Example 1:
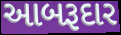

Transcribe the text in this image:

આબરૂદાર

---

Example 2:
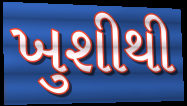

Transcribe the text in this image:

ખુશીથી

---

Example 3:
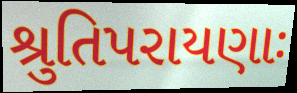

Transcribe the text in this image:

શ્રુતિપરાયણાઃ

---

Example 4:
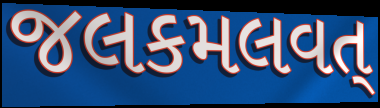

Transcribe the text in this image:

જલકમલવત્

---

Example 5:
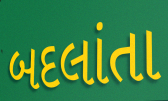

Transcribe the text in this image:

બદલાંતા